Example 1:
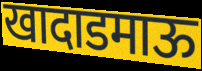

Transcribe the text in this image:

खादाडमाऊ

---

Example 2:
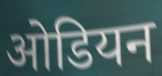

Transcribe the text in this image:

ओडियन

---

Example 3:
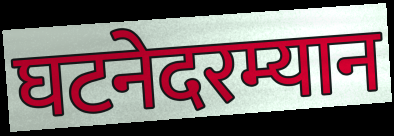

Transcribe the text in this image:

घटनेदरम्यान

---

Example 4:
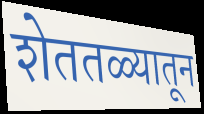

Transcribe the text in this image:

शेततळ्यातून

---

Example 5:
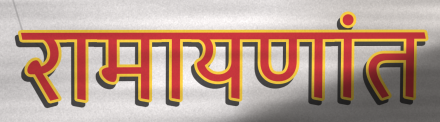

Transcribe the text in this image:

रामायणांत